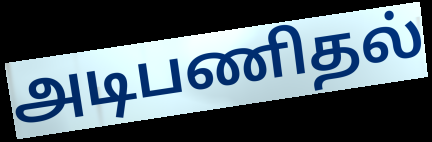
அடிபணிதல்